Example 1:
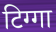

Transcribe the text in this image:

टिग्गा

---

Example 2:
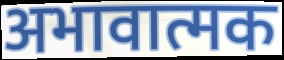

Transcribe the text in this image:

अभावात्मक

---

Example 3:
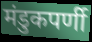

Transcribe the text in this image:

मंडुकपर्णी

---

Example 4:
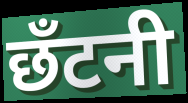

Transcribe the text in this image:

छँटनी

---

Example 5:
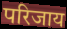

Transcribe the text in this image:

परिजाय